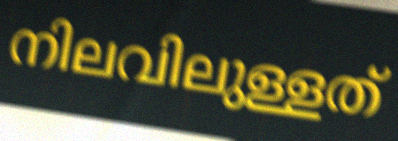
നിലവിലുള്ളത്